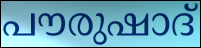
പൗരുഷാദ്